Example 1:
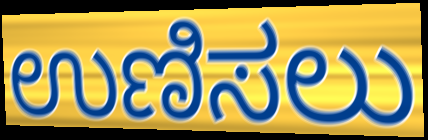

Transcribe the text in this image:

ಉಣಿಸಲು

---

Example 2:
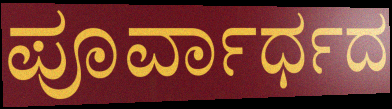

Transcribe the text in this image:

ಪೂರ್ವಾರ್ಧದ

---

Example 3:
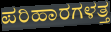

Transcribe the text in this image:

ಪರಿಹಾರಗಳತ್ತ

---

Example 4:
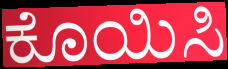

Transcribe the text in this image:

ಕೊಯಿಸಿ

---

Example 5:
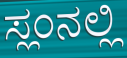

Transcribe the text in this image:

ಸ್ಲಂನಲ್ಲಿ